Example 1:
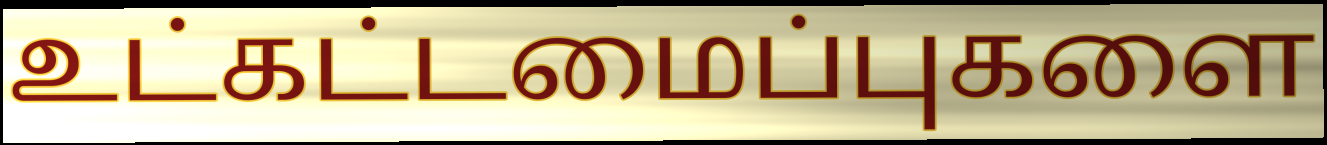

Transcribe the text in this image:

உட்கட்டமைப்புகளை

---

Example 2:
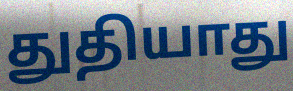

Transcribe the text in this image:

துதியாது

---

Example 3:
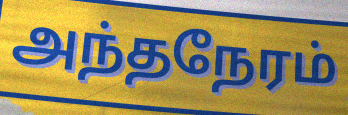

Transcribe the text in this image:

அந்தநேரம்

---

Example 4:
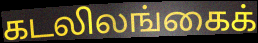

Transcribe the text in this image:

கடலிலங்கைக்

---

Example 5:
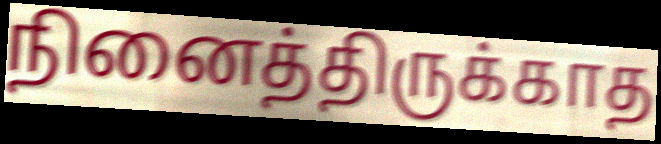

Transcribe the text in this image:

நினைத்திருக்காத